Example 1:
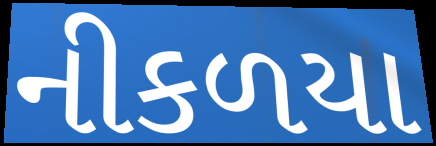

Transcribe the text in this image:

નીકળયા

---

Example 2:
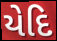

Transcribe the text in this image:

યેદિ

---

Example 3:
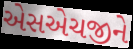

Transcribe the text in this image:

એસએચજીને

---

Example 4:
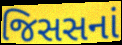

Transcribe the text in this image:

જિસસનાં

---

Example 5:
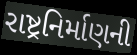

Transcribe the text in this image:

રાષ્ટ્રનિર્માણની